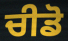
ਚੀਡੋ